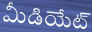
మీడియేట్